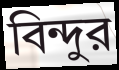
বিন্দুর